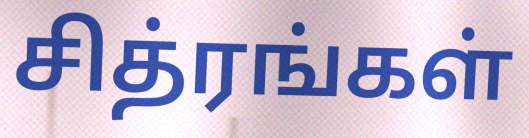
சித்ரங்கள்